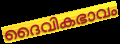
ദൈവികഭാവം